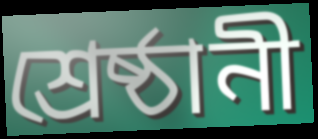
শ্রেষ্ঠানী